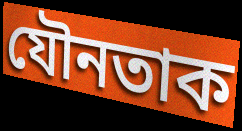
যৌনতাক